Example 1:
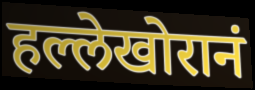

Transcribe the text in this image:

हल्लेखोरानं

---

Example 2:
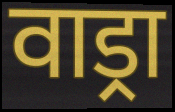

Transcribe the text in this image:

वाड्रा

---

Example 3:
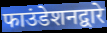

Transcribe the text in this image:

फाउंडेशनद्वारे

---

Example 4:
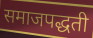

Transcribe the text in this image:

समाजपद्धती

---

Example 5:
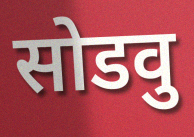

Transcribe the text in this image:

सोडवु